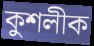
কুশলীক